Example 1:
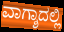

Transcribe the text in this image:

ವಾಗ್ಶಾದಲ್ಲಿ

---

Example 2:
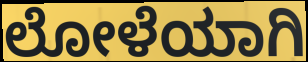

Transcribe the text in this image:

ಲೋಳೆಯಾಗಿ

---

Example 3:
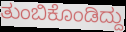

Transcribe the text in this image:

ತುಂಬಿಕೊಂಡಿದ್ದು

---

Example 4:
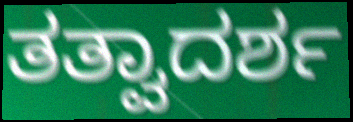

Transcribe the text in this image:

ತತ್ವಾದರ್ಶ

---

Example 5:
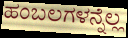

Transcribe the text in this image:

ಹಂಬಲಗಳನ್ನೆಲ್ಲ